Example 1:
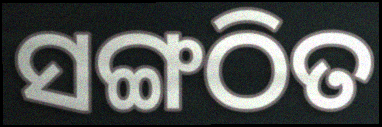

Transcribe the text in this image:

ସଙ୍ଗଠିତ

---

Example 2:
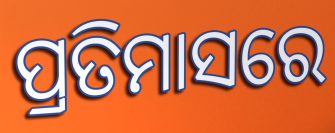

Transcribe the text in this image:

ପ୍ରତିମାସରେ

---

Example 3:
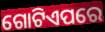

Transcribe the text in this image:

ଗୋଟିଏପରେ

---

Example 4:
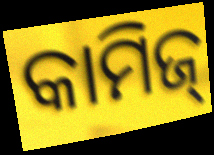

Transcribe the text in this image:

କାମିଜ୍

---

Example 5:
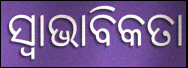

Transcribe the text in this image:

ସ୍ବାଭାବିକତା